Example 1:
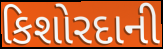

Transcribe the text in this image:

કિશોરદાની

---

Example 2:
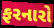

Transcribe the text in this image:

ફરનારો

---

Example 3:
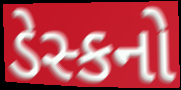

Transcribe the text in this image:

ડેસ્કનો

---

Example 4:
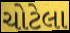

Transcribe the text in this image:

ચોટેલા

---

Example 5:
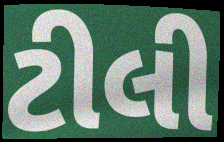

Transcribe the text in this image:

ટીલી